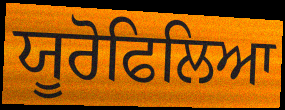
ਯੂਰੋਫਿਲਿਆ